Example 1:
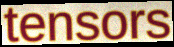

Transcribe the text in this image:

tensors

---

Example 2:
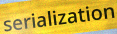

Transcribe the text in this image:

serialization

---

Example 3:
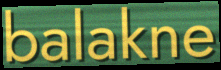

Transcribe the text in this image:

balakne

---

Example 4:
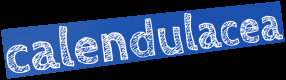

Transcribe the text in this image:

calendulacea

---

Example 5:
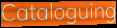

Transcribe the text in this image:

Cataloguing